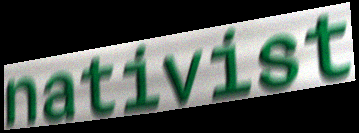
nativist